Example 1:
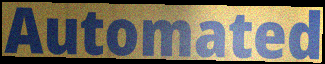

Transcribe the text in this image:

Automated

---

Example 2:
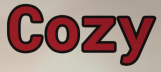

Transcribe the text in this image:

Cozy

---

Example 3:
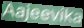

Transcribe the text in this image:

Aajeevika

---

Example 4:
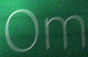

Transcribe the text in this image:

Om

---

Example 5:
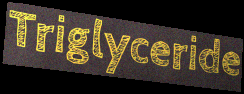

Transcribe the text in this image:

Triglyceride